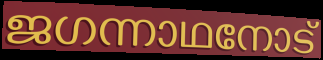
ജഗന്നാഥനോട്